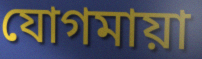
যোগমায়া